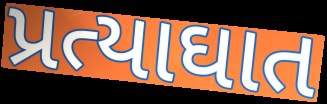
પ્રત્યાઘાત